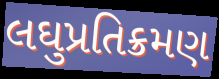
લઘુપ્રતિક્રમણ